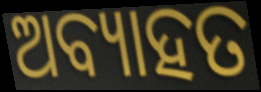
ଅବ୍ୟାହତ